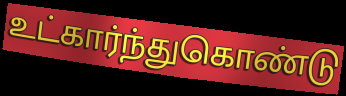
உட்கார்ந்துகொண்டு